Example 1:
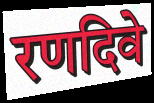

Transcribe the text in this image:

रणदिवे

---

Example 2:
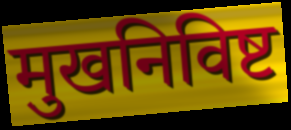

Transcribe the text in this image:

मुखनिविष्ट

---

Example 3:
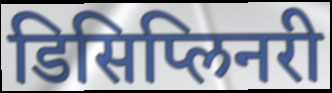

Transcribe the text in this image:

डिसिप्लिनरी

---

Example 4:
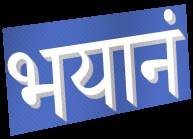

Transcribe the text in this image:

भयानं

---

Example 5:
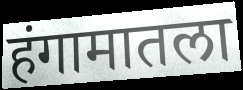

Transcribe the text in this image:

हंगामातला